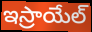
ఇస్రాయేల్